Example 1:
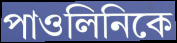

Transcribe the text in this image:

পাওলিনিকে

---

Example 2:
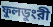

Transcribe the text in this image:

ফুলডুংরী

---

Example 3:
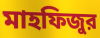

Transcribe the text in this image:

মাহফিজুর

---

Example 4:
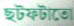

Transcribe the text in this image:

ছটফটাতো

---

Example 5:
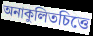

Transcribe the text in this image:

অনাকুলিতচিত্তে